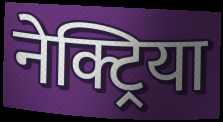
नेक्ट्रिया